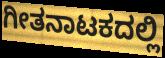
ಗೀತನಾಟಕದಲ್ಲಿ